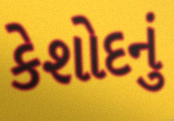
કેશોદનું